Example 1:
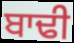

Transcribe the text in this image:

ਬਾਢੀ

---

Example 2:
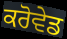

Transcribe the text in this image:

ਕਰੋਵੇਡ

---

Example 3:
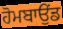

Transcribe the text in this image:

ਹੋਮਬਾਉਂਡ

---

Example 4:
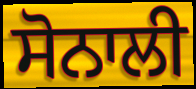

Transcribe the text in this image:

ਸੋਨਾਲੀ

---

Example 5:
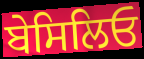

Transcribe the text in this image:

ਬੇਸਿਲਿਓ